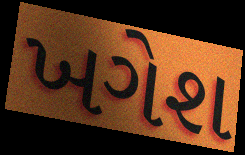
ખગેશ